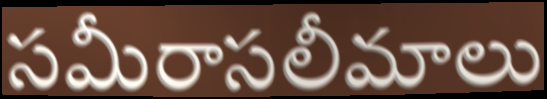
సమీరాసలీమాలు